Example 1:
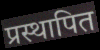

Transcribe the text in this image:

प्रस्थापित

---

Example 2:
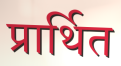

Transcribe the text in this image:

प्रार्थित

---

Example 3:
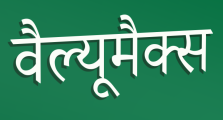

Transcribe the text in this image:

वैल्यूमैक्स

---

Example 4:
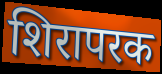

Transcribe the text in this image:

शिरापरक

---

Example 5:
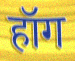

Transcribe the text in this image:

हॉग